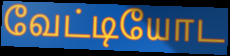
வேட்டியோட